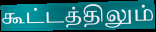
கூட்டத்திலும்